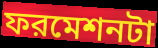
ফরমেশনটা